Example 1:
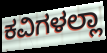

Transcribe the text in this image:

ಕವಿಗಳಲ್ಲಾ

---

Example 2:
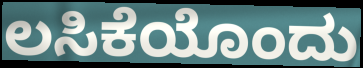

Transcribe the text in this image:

ಲಸಿಕೆಯೊಂದು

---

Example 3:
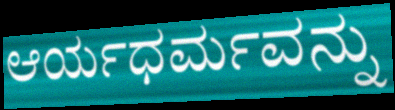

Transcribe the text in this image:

ಆರ್ಯಧರ್ಮವನ್ನು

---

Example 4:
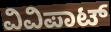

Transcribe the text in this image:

ವಿವಿಪಾಟ್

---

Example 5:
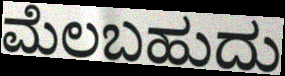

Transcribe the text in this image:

ಮೆಲಬಹುದು